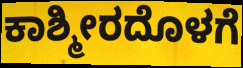
ಕಾಶ್ಮೀರದೊಳಗೆ